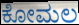
ಕೋಮಲ